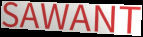
SAWANT